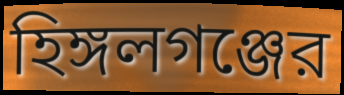
হিঙ্গলগঞ্জের